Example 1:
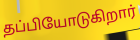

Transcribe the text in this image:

தப்பியோடுகிறார்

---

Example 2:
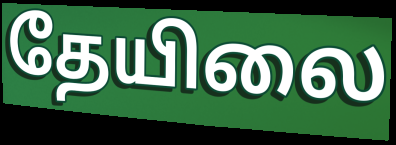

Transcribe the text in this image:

தேயிலை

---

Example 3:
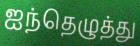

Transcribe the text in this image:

ஐந்தெழுத்து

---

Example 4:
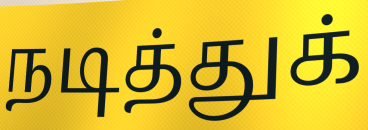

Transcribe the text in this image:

நடித்துக்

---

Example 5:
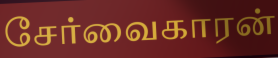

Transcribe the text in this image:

சேர்வைகாரன்